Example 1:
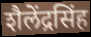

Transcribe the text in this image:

शैलेंद्रसिंह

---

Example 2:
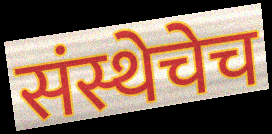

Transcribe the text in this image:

संस्थेचेच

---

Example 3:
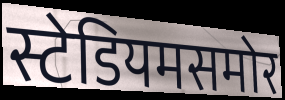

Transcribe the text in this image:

स्टेडियमसमोर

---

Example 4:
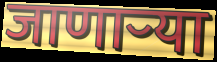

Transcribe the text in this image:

जाणाऱ्या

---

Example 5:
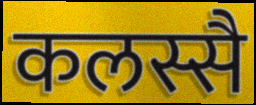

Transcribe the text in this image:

कलस्सै